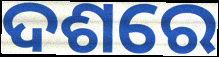
ଦଶରେ